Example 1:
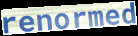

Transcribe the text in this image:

renormed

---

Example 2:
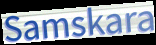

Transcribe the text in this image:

Samskara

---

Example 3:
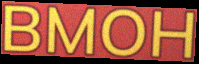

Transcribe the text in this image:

BMOH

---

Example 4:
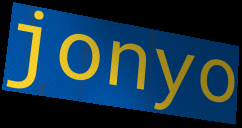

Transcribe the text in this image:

jonyo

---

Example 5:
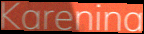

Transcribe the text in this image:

Karenina